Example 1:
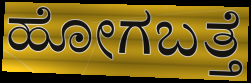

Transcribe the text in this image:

ಹೋಗಬತ್ತೆ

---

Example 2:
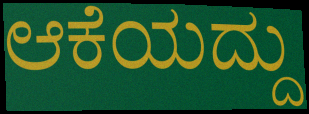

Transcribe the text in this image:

ಆಕೆಯದ್ದು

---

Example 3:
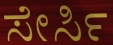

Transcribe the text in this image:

ಸೇರ್ಸಿ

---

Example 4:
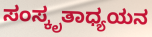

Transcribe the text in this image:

ಸಂಸ್ಕೃತಾಧ್ಯಯನ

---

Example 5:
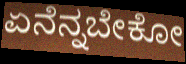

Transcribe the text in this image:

ಏನೆನ್ನಬೇಕೋ